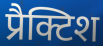
प्रैक्टिश